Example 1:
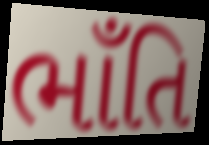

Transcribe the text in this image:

ભાઁતિ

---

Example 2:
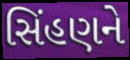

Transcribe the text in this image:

સિંહણને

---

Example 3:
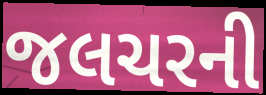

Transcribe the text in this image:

જલચરની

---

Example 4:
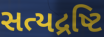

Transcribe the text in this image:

સત્યદ્રષ્ટિ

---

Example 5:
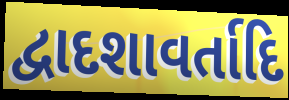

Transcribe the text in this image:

દ્વાદશાવર્તાદિ